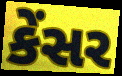
કેંસર